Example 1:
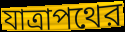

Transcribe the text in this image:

যাত্রাপথের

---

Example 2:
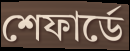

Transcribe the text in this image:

শেফার্ডে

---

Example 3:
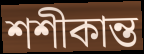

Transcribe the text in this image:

শশীকান্ত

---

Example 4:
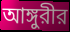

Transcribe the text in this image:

আঙ্গুরীর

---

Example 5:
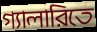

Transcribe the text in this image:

গ্যালারিতে